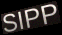
SIPP